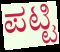
ಪಟ್ಟಿ